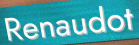
Renaudot